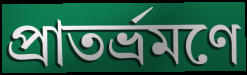
প্রাতর্ভ্রমণে